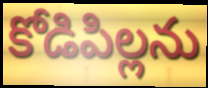
కోడిపిల్లను